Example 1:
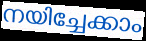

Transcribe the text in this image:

നയിച്ചേക്കാം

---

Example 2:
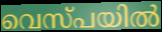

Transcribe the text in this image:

വെസ്പയിൽ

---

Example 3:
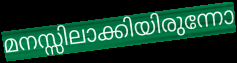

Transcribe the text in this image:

മനസ്സിലാക്കിയിരുന്നോ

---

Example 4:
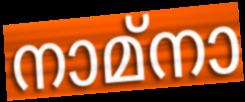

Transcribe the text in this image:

നാമ്നാ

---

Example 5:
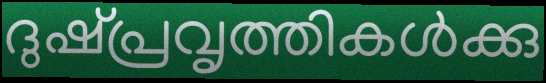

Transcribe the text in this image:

ദുഷ്പ്രവൃത്തികൾക്കു